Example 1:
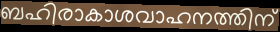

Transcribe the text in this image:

ബഹിരാകാശവാഹനത്തിന്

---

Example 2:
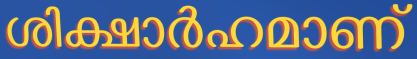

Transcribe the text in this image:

ശിക്ഷാർഹമാണ്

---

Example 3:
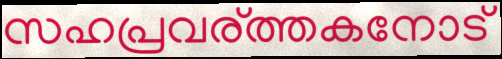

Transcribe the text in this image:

സഹപ്രവര്ത്തകനോട്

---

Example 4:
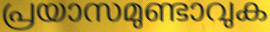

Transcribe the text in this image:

പ്രയാസമുണ്ടാവുക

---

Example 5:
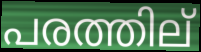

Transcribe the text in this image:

പരത്തില്